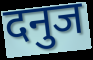
दनुज